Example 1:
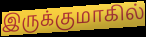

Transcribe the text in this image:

இருக்குமாகில்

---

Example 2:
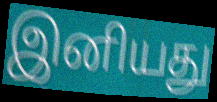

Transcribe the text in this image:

இனியது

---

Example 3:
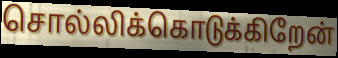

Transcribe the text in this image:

சொல்லிக்கொடுக்கிறேன்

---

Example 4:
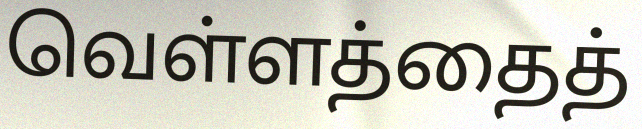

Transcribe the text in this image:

வெள்ளத்தைத்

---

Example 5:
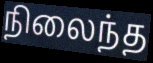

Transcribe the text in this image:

நிலைந்த